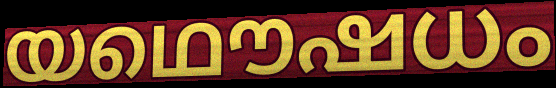
യഥൌഷധം